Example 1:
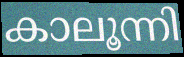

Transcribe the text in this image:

കാലൂന്നി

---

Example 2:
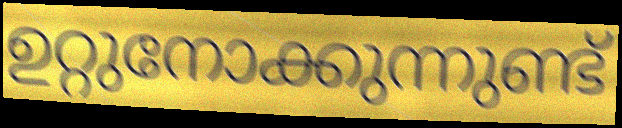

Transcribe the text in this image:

ഉറ്റുനോക്കുന്നുണ്ട്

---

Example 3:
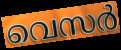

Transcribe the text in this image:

വെസർ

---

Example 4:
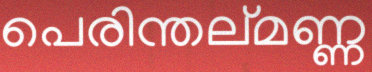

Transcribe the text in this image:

പെരിന്തല്മണ്ണ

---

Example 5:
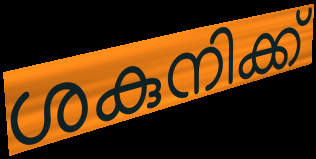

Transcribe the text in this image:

ശകുനിക്ക്